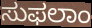
ಸುಫಲಾಂ